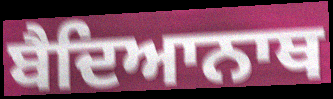
ਬੈਦਿਆਨਾਥ